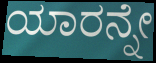
ಯಾರನ್ನೇ